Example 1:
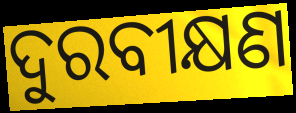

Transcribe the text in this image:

ଦୁରବୀକ୍ଷଣ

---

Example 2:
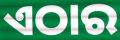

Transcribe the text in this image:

ଏଠାର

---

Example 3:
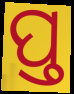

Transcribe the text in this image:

ପ୍ତ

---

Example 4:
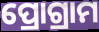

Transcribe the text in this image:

ପ୍ରୋଗ୍ରାମ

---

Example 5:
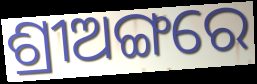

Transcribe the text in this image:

ଶ୍ରୀଅଙ୍ଗରେ